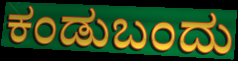
ಕಂಡುಬಂದು